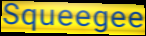
Squeegee